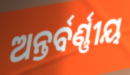
ଅନ୍ତର୍ବର୍ଣ୍ଣୀୟ